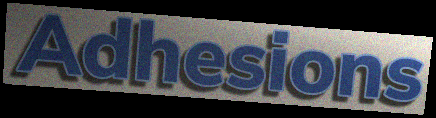
Adhesions